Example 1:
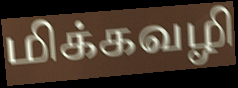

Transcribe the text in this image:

மிக்கவழி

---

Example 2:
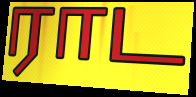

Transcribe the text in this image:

ராட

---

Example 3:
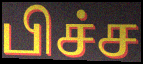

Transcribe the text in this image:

பிச்ச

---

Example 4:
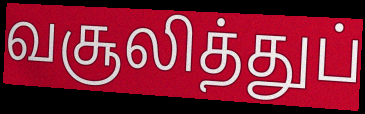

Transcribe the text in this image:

வசூலித்துப்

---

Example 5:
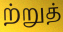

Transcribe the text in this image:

ற்றுத்